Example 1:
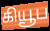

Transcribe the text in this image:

கியூப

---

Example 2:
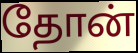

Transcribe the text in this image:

தோன்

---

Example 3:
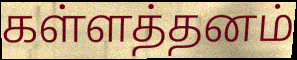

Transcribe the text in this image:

கள்ளத்தனம்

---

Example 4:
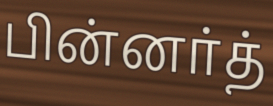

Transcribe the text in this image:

பின்னர்த்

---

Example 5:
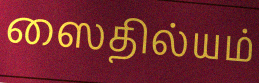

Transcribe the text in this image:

ஸைதில்யம்